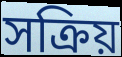
সক্ৰিয়